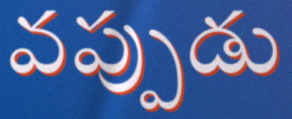
వప్పుడు